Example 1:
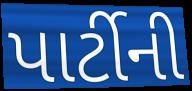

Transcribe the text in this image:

પાર્ટીની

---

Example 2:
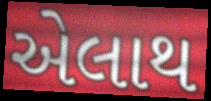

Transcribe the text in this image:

એલાથ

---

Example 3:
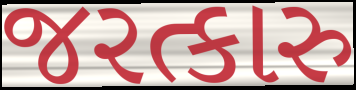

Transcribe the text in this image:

જરત્કારુ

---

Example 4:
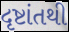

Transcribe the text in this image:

દૃષ્ટાંતથી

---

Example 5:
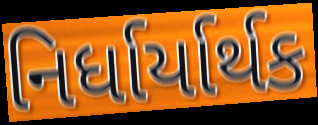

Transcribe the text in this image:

નિર્ધાર્યાર્થક